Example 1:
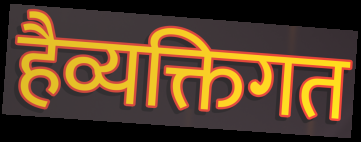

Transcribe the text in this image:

हैव्यक्तिगत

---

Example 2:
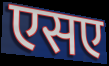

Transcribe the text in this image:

एसए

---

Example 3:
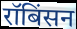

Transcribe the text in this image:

रॉबिंसन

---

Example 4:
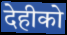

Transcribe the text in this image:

देहीको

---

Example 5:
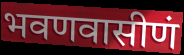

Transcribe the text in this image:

भवणवासीणं